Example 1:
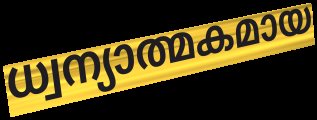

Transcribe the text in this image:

ധ്വന്യാത്മകമായ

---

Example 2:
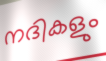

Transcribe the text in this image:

നദികളും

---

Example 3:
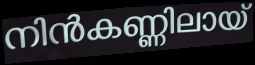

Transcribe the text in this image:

നിൻകണ്ണിലായ്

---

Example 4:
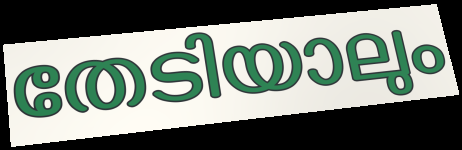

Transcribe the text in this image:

തേടിയാലും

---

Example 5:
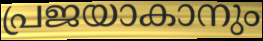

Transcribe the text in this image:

പ്രജയാകാനും